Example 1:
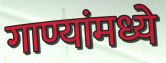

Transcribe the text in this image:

गाण्यांमध्ये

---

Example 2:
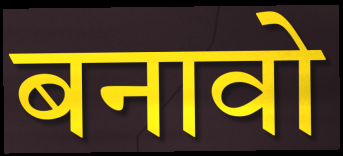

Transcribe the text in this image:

बनावो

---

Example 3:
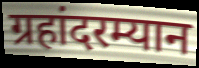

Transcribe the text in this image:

ग्रहांदरम्यान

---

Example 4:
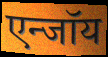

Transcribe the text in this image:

एन्जॉय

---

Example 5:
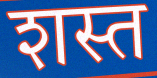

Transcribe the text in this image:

शस्त